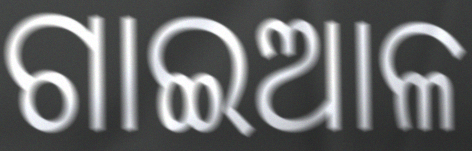
ଗାଇଆଳ